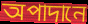
অপাদানে